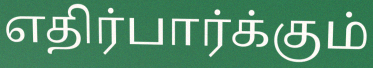
எதிர்பார்க்கும்